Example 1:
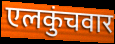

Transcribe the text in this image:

एलकुंचवार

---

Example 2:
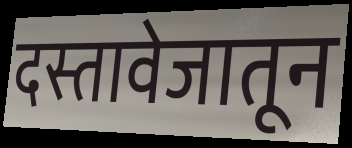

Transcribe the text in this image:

दस्तावेजातून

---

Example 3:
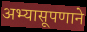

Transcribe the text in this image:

अभ्यासूपणाने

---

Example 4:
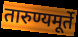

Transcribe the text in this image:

तारुण्यमूर्ते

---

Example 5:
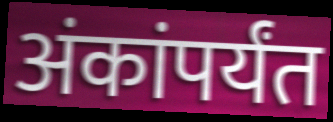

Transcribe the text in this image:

अंकांपर्यंत